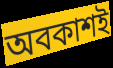
অবকাশই